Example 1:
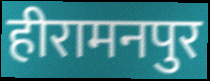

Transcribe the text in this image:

हीरामनपुर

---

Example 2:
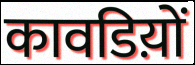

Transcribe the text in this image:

कावडिय़ों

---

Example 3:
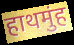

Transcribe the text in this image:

हाथमुंह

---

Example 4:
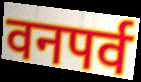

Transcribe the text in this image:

वनपर्व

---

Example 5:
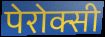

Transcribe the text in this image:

पेरोक्सी